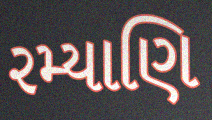
રમ્યાણિ